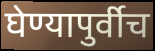
घेण्यापुर्वीच